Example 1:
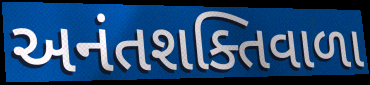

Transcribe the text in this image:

અનંતશક્તિવાળા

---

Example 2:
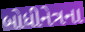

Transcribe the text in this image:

બોધીનેત્રના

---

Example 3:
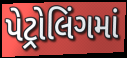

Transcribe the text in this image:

પેટ્રોલિંગમાં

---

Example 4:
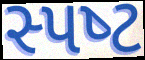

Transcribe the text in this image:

સ્પષ્‍ટ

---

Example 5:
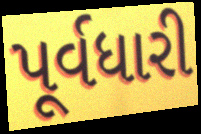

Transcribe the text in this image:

પૂર્વધારી